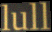
lull